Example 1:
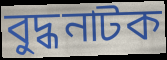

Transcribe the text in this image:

বুদ্ধনাটক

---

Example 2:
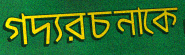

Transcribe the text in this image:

গদ্যরচনাকে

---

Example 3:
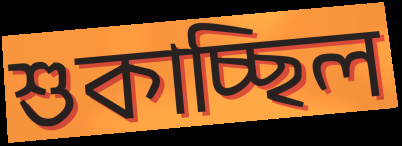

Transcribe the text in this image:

শুকাচ্ছিল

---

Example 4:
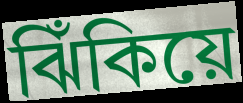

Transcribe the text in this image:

ঝিঁকিয়ে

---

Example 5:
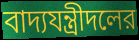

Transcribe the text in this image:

বাদ্যযন্ত্রীদলের